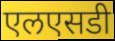
एलएसडी